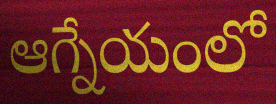
ఆగ్నేయంలో